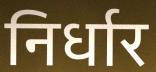
निर्धार